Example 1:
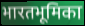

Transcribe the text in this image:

भारतभूमिका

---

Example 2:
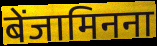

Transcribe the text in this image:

बेंजामिनना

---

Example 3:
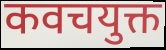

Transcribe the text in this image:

कवचयुक्त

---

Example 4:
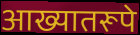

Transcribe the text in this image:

आख्यातरूपे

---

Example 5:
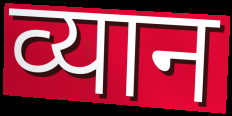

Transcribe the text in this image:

व्यान